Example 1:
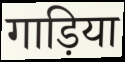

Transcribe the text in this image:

गाड़िया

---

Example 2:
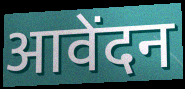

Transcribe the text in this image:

आवेंदन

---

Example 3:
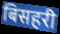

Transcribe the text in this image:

बिसहरी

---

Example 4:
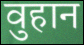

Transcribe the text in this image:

वुहान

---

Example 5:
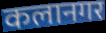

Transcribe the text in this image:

कलानगर